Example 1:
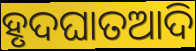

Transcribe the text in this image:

ହୃଦଘାତଆଦି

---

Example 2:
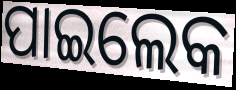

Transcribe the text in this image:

ପାଇଲେକ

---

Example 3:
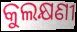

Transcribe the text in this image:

କୁଲକ୍ଷଣୀ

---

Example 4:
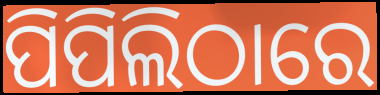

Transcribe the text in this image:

ପିପିଲିଠାରେ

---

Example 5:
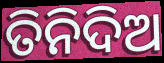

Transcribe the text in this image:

ତିନିଦିଅ